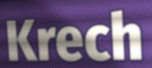
Krech